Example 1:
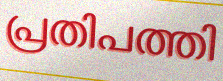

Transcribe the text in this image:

പ്രതിപത്തി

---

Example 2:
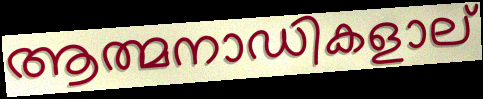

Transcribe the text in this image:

ആത്മനാഡികളാല്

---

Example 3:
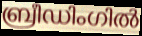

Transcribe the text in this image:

ബ്രീഡിംഗിൽ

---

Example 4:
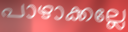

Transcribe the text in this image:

പാഴാക്കല്ലേ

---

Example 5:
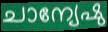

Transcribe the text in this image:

ചാന്യേഷു